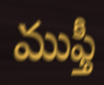
ముఫ్తీ